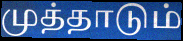
முத்தாடும்